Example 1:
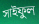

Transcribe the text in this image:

সাইফুল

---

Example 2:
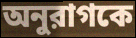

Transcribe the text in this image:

অনুরাগকে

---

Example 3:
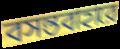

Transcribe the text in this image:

বসন্তবাহারে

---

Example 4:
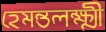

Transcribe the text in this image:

হেমন্তলক্ষ্মী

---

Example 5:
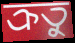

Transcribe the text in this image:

ক্রতু